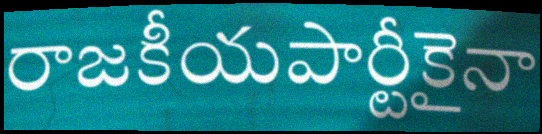
రాజకీయపార్టీకైనా